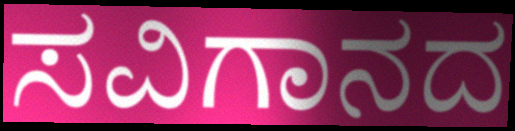
ಸವಿಗಾನದ